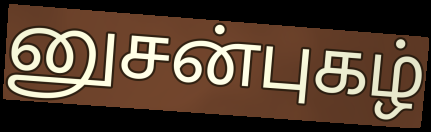
னுசன்புகழ்